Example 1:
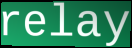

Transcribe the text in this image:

relay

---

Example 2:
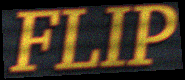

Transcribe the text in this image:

FLIP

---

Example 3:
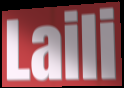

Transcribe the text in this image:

Laili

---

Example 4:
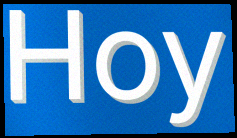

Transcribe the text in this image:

Hoy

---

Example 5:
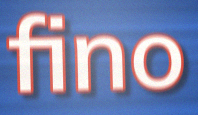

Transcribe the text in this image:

fino